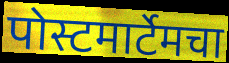
पोस्टमार्टेमचा